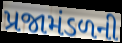
પ્રજામંડળની